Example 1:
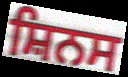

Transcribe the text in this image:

ਸ਼ਿਨਸ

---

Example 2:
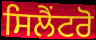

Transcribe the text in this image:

ਸਿਲੈਂਟਰੋ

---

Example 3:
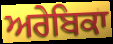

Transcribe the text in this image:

ਅਰੇਬਿਕਾ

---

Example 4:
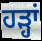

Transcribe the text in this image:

ਹਡ਼੍ਹਾਂ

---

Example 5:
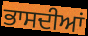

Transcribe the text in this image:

ਭਾਸਦੀਆਂ